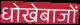
धोखेबाजों